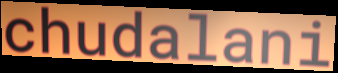
chudalani